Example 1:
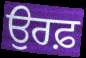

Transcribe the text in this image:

ਉਰਫ਼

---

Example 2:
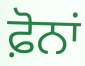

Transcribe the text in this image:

ਫ਼ੋਨਾਂ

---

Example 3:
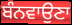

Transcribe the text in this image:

ਬੰਨਵਾਉਣਾ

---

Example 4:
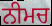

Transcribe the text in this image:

ਨੀਮਚ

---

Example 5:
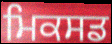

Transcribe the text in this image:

ਮਿਕਸਡ